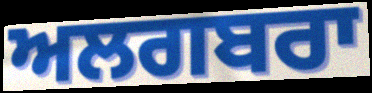
ਅਲਗਬਰਾ